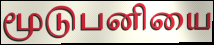
மூடுபனியை